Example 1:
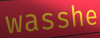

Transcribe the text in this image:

wasshe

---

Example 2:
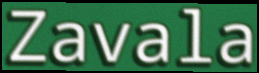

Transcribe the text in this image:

Zavala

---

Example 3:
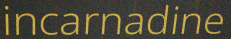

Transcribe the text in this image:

incarnadine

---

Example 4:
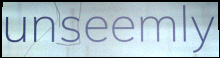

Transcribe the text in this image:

unseemly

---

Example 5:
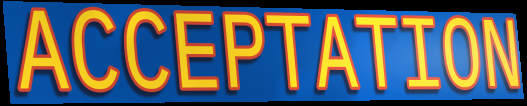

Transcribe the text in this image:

ACCEPTATION